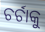
ଚର୍ଚାକୁ